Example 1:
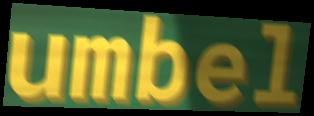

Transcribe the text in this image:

umbel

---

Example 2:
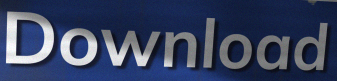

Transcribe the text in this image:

Download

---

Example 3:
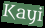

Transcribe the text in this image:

Kayi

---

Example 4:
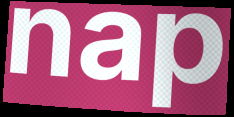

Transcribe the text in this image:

nap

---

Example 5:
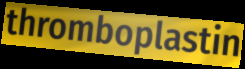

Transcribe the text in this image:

thromboplastin